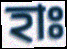
হাঃ